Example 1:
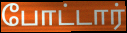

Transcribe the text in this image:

போட்டார்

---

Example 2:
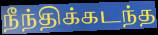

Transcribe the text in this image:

நீந்திக்கடந்த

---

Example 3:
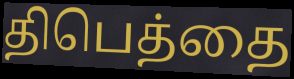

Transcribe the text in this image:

திபெத்தை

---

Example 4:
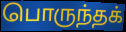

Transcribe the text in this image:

பொருந்தக்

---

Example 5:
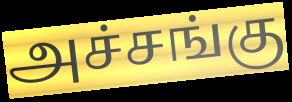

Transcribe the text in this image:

அச்சங்கு